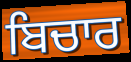
ਬਿਚਾਰ